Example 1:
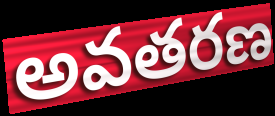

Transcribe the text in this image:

అవతరణ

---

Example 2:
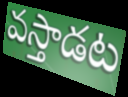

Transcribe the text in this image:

వస్తాడట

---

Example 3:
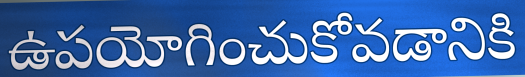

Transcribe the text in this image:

ఉపయోగించుకోవడానికి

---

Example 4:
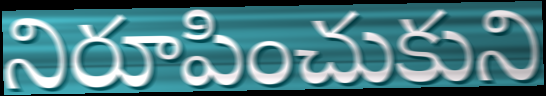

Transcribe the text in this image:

నిరూపించుకుని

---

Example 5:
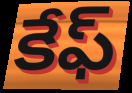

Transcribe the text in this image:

కేఫ్